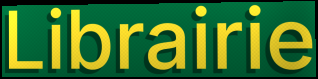
Librairie